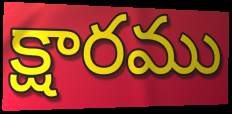
క్షారము